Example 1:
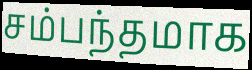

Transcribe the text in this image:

சம்பந்தமாக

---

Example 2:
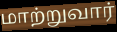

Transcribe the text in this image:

மாற்றுவார்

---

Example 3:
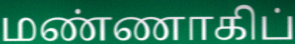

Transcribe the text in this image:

மண்ணாகிப்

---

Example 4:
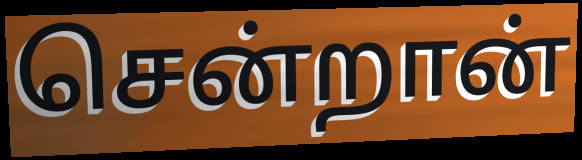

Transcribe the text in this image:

சென்றான்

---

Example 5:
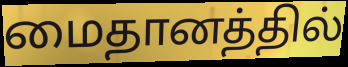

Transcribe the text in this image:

மைதானத்தில்